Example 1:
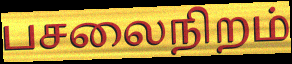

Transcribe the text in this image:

பசலைநிறம்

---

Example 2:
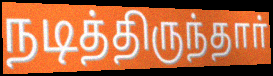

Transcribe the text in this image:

நடித்திருந்தார்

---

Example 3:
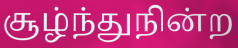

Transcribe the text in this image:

சூழ்ந்துநின்ற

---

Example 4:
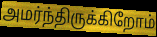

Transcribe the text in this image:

அமர்ந்திருக்கிறோம்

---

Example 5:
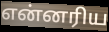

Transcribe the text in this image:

என்னரிய